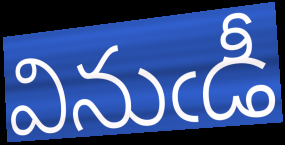
వినుఁడీ